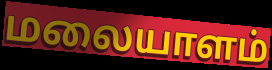
மலையாளம்